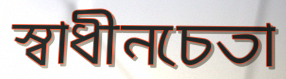
স্বাধীনচেতা